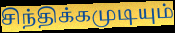
சிந்திக்கமுடியும்